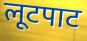
लूटपाट